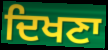
ਦਿਖਣਾ